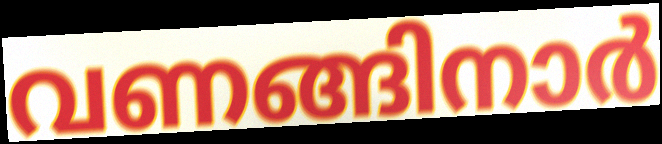
വണങ്ങിനാർ